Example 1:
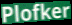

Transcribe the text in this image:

Plofker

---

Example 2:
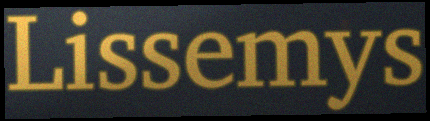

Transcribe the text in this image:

Lissemys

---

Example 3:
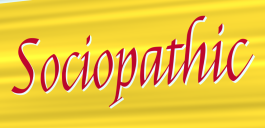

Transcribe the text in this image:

Sociopathic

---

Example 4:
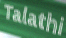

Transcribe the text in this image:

Talathi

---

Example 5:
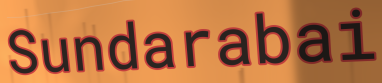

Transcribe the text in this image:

Sundarabai